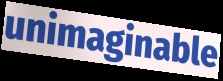
unimaginable